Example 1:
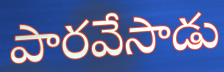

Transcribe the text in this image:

పారవేసాడు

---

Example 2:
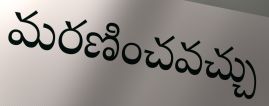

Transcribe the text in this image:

మరణించవచ్చు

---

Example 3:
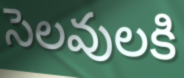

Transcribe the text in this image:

సెలవులకి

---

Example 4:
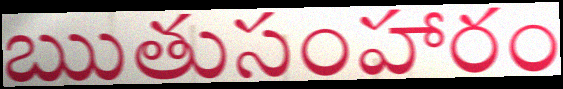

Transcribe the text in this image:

ఋతుసంహారం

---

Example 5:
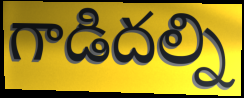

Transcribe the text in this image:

గాడిదల్ని